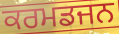
ਕਰਮਡਜਨ